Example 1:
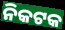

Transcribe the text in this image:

ନିକଟକ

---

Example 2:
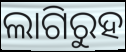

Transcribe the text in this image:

ଲାଗିରୁହ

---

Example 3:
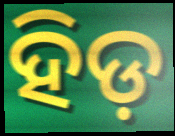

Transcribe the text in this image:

ହିଡ଼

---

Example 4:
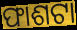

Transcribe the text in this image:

ଫାଶଟା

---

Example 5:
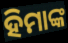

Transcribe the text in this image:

ହିମାଙ୍କ